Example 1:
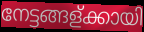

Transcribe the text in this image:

നേട്ടങ്ങള്ക്കായി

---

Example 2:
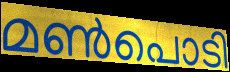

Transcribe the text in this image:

മൺപൊടി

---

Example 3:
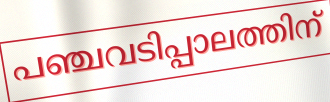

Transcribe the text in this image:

പഞ്ചവടിപ്പാലത്തിന്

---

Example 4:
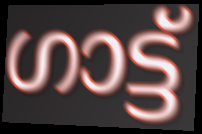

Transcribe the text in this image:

ഗാട്ട്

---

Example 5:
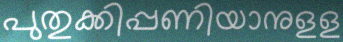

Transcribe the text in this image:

പുതുക്കിപ്പണിയാനുളള